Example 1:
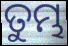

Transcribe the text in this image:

ତୁମ୍ଭ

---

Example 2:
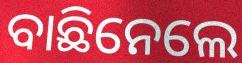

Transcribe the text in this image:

ବାଛିନେଲେ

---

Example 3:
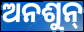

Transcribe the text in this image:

ଅନଶୁନ୍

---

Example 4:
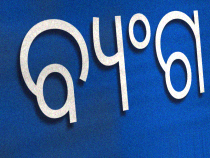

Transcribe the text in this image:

ବ୍ୟଂଗ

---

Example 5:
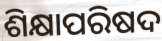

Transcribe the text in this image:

ଶିକ୍ଷାପରିଷଦ